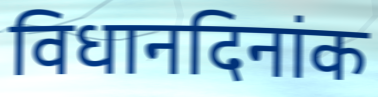
विधानदिनांक